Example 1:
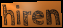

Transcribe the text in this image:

hiren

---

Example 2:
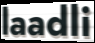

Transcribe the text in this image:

laadli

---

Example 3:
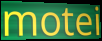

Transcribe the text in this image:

motei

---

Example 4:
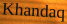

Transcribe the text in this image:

Khandaq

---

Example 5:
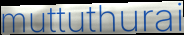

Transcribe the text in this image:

muttuthurai